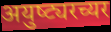
अयुष्ट्यरच्यर